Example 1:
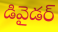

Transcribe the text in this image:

డివైడర్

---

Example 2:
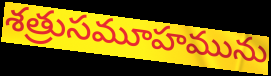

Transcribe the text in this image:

శత్రుసమూహమును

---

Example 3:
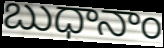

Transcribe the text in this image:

బుధానాం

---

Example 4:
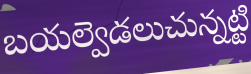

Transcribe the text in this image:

బయల్వెడలుచున్నట్టి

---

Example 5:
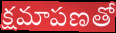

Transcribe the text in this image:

క్షమాపణతో